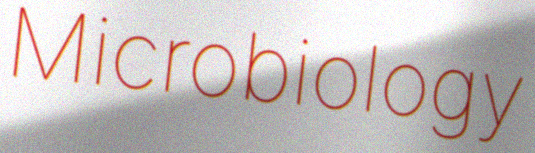
Microbiology